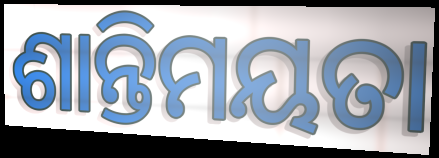
ଶାନ୍ତିମୟତା